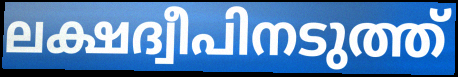
ലക്ഷദ്വീപിനടുത്ത്